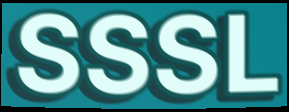
SSSL